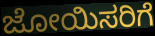
ಜೋಯಿಸರಿಗೆ